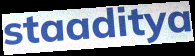
staaditya